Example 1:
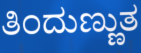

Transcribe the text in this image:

ತಿಂದುಣ್ಣುತ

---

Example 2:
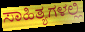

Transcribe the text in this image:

ಸಾಹಿತ್ಯಗಳಲ್ಲಿ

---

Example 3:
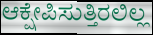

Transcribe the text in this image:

ಆಕ್ಷೇಪಿಸುತ್ತಿರಲಿಲ್ಲ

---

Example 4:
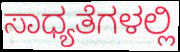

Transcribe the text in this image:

ಸಾಧ್ಯತೆಗಳಲ್ಲಿ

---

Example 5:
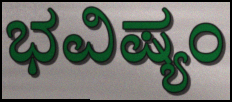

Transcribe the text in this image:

ಭವಿಷ್ಯಂ